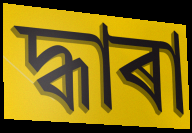
দ্ধাৰা